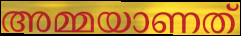
അമ്മയാണത്